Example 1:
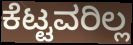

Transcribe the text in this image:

ಕೆಟ್ಟವರಿಲ್ಲ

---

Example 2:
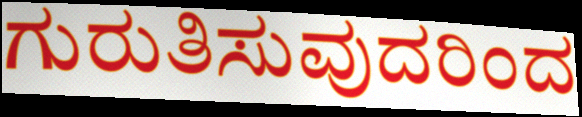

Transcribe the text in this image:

ಗುರುತಿಸುವುದರಿಂದ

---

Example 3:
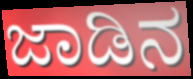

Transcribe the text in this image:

ಜಾಡಿನ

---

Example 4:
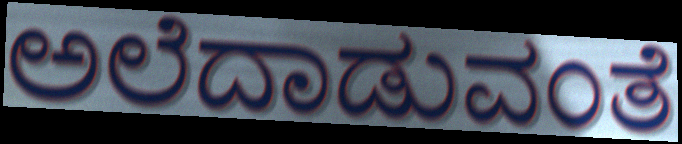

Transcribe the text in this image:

ಅಲೆದಾಡುವಂತೆ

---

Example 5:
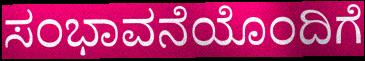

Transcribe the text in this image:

ಸಂಭಾವನೆಯೊಂದಿಗೆ